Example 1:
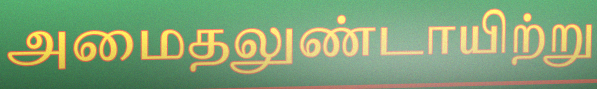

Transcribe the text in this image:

அமைதலுண்டாயிற்று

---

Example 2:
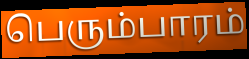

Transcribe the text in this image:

பெரும்பாரம்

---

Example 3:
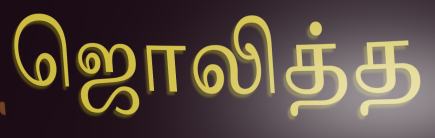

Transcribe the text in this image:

ஜொலித்த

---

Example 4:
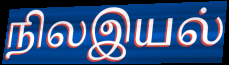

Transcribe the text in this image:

நிலஇயல்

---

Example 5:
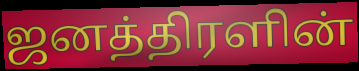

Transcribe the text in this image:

ஜனத்திரளின்